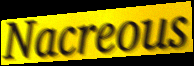
Nacreous